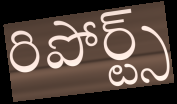
రిపోర్ట్స్